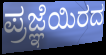
ಪ್ರಜ್ಞೆಯಿರದ